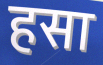
हसा